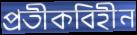
প্রতীকবিহীন